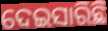
ଦେଇସାରିଛି